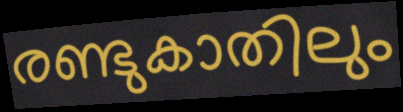
രണ്ടുകാതിലും